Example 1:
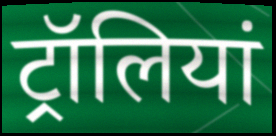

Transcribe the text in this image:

ट्रॉलियां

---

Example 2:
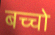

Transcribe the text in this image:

बच्चो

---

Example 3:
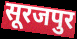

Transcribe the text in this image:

सूरजपुर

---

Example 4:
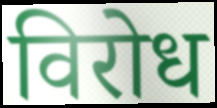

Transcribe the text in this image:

विरोध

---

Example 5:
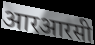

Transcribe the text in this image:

आरआरसी